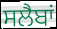
ਸਲੈਬਾਂ